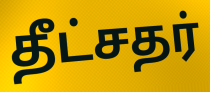
தீட்சதர்